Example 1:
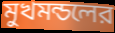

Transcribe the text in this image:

মুখমন্ডলের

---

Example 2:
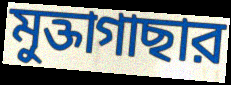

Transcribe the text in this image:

মুক্তাগাছার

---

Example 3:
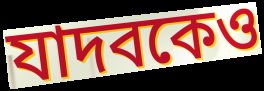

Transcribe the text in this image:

যাদবকেও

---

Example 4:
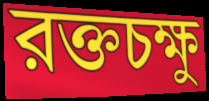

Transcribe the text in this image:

রক্তচক্ষু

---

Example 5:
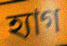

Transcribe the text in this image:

হ্যাগ